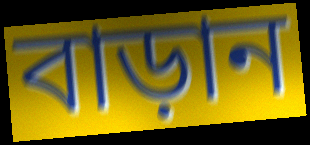
বাড়ান